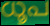
ധൂപ